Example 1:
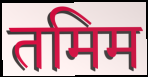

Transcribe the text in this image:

तमिम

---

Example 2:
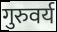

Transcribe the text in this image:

गुरुवर्य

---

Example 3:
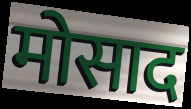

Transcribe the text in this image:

मोसाद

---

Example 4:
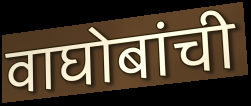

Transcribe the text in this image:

वाघोबांची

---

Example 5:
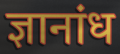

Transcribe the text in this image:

ज्ञानांध